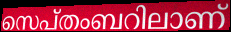
സെപ്തംബറിലാണ്